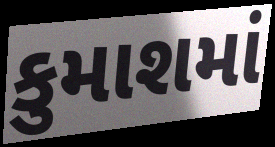
કુમાશમાં